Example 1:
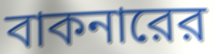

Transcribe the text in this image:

বাকনারের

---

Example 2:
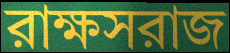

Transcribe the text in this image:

রাক্ষসরাজ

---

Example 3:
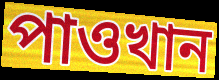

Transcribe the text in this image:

পাওখান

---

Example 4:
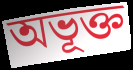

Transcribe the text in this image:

অভূক্ত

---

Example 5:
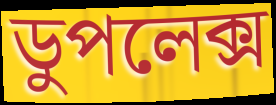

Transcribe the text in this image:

ডুপলেক্স